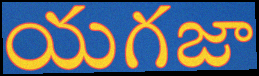
యగజా